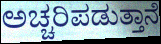
ಅಚ್ಚರಿಪಡುತ್ತಾನೆ